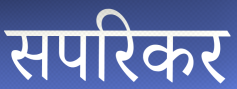
सपरिकर